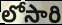
లోసారి